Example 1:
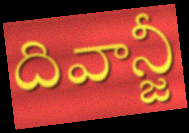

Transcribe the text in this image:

దివాన్జీ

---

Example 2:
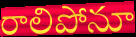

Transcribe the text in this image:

రాలిపోనూ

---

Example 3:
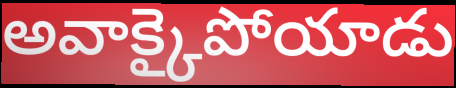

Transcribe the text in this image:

అవాక్కైపోయాడు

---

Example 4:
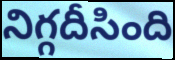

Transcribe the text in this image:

నిగ్గదీసింది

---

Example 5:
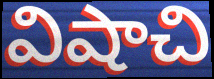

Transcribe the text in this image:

విషాచి